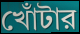
খোঁটার